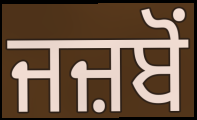
ਜਜ਼ਬੋਂ